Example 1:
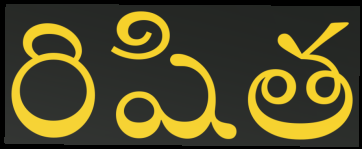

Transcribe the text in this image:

రిషిత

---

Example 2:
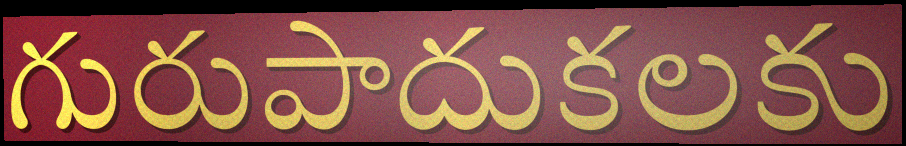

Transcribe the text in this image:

గురుపాదుకలకు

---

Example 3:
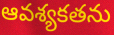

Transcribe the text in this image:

ఆవశ్యకతను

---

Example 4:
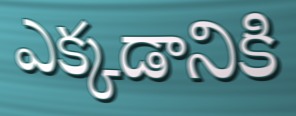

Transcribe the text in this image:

ఎక్కడానికి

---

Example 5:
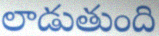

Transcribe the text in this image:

లాడుతుంది